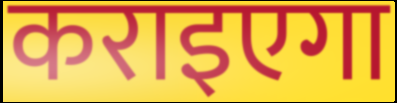
कराइएगा